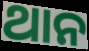
ଥାନ